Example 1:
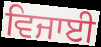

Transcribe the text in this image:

ਵਿਜਾਈ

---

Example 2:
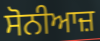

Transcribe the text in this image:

ਸੋਨੀਆਜ਼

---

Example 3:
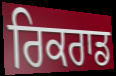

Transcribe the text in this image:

ਰਿਕਰਾਡ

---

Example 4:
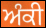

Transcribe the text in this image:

ਅੰਕੀ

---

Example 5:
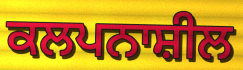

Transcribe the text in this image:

ਕਲਪਨਾਸ਼ੀਲ